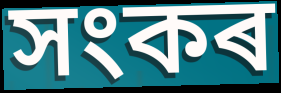
সংকৰ